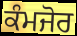
ਕੰਮਜੋਰ